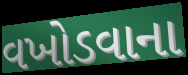
વખોડવાના